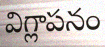
విగ్లాపనం